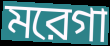
মরেগা